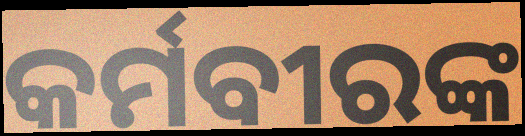
କର୍ମବୀରଙ୍କ